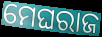
ମେଘରାଜ